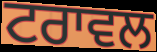
ਟਰਾਵਲ